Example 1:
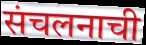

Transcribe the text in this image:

संचलनाची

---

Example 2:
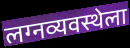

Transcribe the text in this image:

लग्नव्यवस्थेला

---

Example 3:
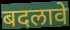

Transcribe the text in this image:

बदलावे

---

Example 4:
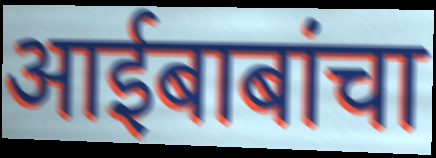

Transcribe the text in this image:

आईबाबांचा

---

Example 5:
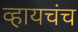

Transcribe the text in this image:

व्हायचंच